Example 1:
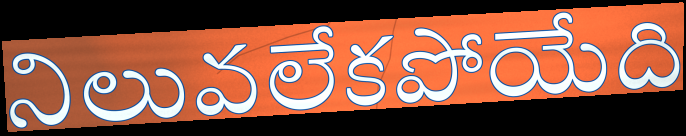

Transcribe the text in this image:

నిలువలేకపోయేది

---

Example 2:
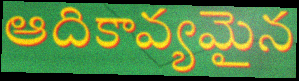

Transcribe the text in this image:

ఆదికావ్యమైన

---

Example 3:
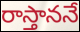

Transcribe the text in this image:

రాస్తాననే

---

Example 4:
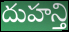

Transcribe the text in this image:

దుహన్తి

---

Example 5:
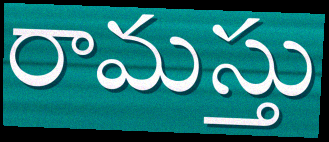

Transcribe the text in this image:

రామస్తు